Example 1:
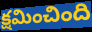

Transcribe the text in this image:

క్షమించింది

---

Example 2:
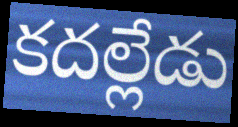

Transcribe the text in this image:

కదల్లేడు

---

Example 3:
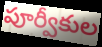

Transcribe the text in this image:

పూర్వీకుల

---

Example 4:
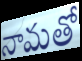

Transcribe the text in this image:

నామతో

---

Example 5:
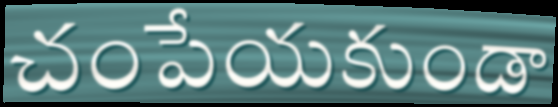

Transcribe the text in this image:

చంపేయకుండా